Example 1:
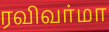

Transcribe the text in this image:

ரவிவர்மா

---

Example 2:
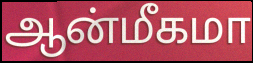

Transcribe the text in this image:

ஆன்மீகமா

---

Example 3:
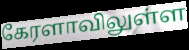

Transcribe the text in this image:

கேரளாவிலுள்ள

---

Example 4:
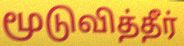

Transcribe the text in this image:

மூடுவித்தீர்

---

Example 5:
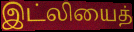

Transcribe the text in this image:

இட்லியைத்